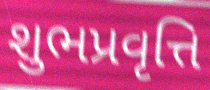
શુભપ્રવૃત્તિ